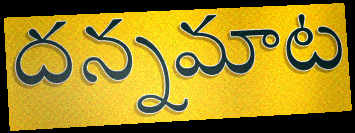
దన్నమాట